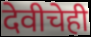
देवीचेही